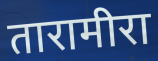
तारामीरा